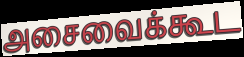
அசைவைக்கூட